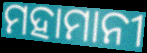
ମହାମାନୀ